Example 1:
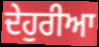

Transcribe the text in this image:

ਦੇਹੁਰੀਆ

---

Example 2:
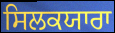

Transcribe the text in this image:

ਸਿਲਕਯਾਰਾ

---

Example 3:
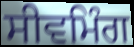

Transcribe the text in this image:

ਸੀਵਮਿੰਗ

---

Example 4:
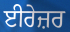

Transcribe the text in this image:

ਈਰੇਜ਼ਰ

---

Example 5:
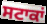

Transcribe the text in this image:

ਸਟਾਕਾਂ